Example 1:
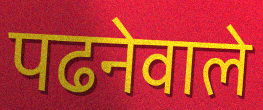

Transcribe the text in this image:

पढनेवाले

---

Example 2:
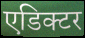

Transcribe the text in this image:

एडिक्टर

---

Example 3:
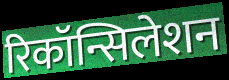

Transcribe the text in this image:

रिकॉन्सिलेशन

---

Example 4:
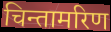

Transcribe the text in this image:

चिन्तामरिण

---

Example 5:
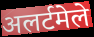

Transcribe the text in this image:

अलर्टमेले